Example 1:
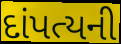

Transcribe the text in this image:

દાંપત્યની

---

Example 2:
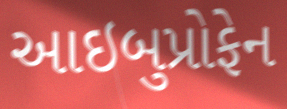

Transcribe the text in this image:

આઇબુપ્રોફેન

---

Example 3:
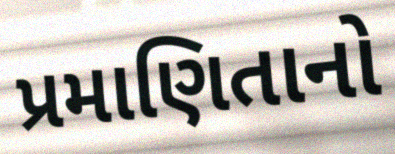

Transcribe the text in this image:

પ્રમાણિતાનો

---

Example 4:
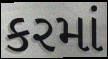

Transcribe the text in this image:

કરમાં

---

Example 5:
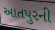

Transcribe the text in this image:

આતપુરની